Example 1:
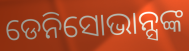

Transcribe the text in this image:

ଡେନିସୋଭାନ୍ସଙ୍କ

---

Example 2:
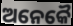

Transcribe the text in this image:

ଅନେକୈ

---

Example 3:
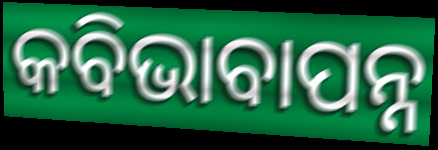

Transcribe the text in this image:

କବିଭାବାପନ୍ନ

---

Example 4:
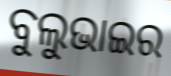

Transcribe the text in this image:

ବୁଲୁଭାଇର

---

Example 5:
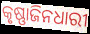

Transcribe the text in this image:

କୃଷ୍ଣାଜିନଧାରୀ